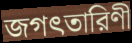
জগৎতারিণী